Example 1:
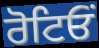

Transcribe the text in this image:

ਰੋਟਿਓਂ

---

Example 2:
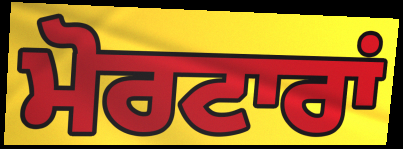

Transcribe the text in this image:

ਮੋਰਟਾਰਾਂ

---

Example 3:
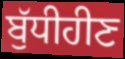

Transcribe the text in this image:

ਬੁੱਧੀਹੀਣ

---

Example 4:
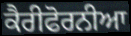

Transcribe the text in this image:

ਕੈਰੀਫੋਰਨੀਆ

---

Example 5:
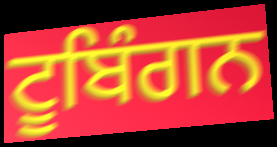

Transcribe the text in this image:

ਟੂਬਿੰਗਨ